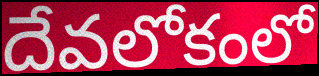
దేవలోకంలో